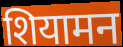
शियामन